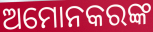
ଅମୋନକରଙ୍କ